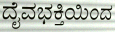
ದೈವಭಕ್ತಿಯಿಂದ